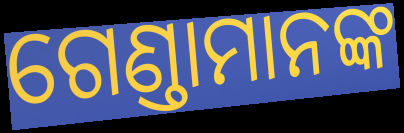
ଗେଣ୍ଡାମାନଙ୍କ